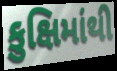
કુક્ષિમાંથી